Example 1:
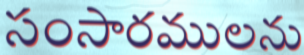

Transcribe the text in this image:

సంసారములను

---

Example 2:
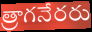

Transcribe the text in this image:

త్రాగనేరరు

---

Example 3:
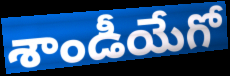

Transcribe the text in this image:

శాండీయేగో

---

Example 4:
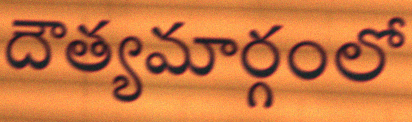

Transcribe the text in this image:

దౌత్యమార్గంలో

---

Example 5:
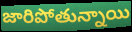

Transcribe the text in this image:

జారిపోతున్నాయి